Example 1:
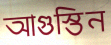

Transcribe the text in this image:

আগুস্তিন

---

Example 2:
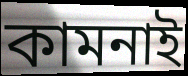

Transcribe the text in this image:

কামনাই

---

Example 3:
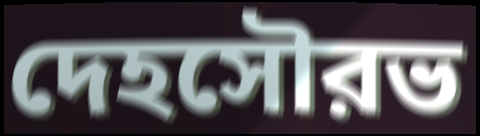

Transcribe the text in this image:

দেহসৌরভ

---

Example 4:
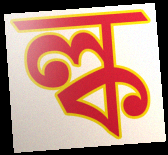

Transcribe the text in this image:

ল্ক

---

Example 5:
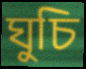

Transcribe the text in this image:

ঘুচি